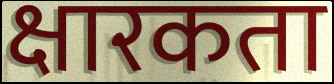
क्षारकता